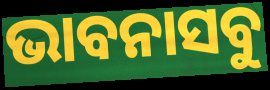
ଭାବନାସବୁ